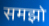
समझो